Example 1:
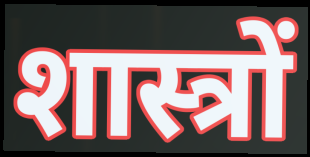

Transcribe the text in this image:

शास्त्रों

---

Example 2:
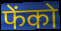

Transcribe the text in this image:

फेंको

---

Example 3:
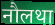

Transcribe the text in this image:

नौलथा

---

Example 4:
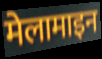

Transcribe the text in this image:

मेलामाइन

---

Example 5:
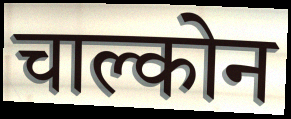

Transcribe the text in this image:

चाल्कोन